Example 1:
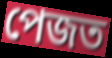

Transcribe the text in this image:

পেজত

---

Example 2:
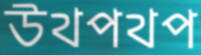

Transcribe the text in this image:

উথপথপ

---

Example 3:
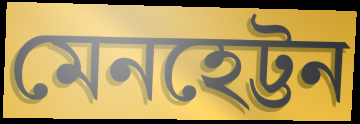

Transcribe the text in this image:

মেনহেট্টন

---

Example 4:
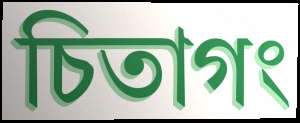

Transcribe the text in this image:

চিতাগং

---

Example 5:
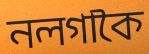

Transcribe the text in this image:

নলগাকৈ